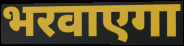
भरवाएगा